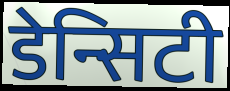
डेन्सिटी